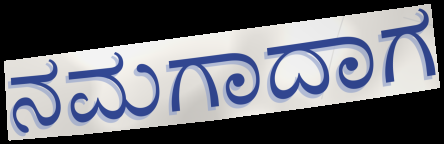
ನಮಗಾದಾಗ